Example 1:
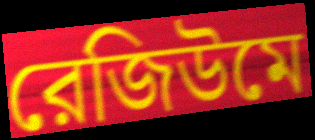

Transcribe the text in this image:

রেজিউমে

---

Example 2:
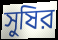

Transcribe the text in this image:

সুষির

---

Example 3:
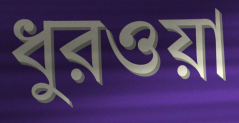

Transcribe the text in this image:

ধুরওয়া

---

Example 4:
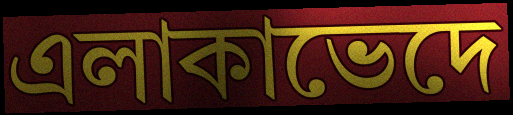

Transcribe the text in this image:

এলাকাভেদে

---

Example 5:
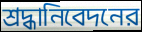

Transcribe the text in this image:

শ্রদ্ধানিবেদনের